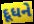
દૂધને